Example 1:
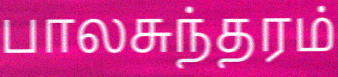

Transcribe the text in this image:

பாலசுந்தரம்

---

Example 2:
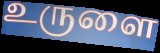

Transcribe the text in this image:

உருளை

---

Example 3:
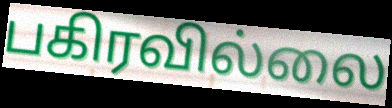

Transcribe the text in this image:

பகிரவில்லை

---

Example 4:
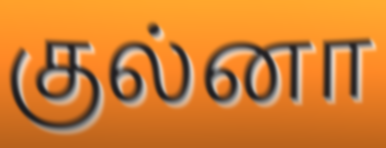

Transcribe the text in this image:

குல்னா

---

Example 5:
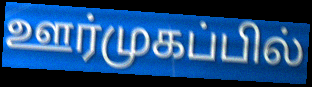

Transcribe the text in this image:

ஊர்முகப்பில்